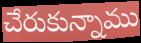
చేరుకున్నాము